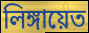
লিঙ্গায়েত